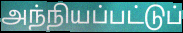
அந்நியப்பட்டுப்